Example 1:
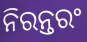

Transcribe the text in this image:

ନିରନ୍ତରଂ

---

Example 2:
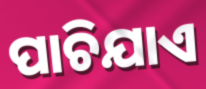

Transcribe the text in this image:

ପାଚିଯାଏ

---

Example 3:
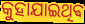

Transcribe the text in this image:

କୁହାଯାଇଥିଵ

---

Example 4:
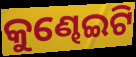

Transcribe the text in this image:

କୁଣ୍ଢେଇଟି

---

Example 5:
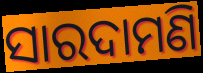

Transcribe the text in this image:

ସାରଦାମଣି